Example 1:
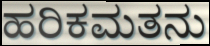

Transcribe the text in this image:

ಹರಿಕಮತನು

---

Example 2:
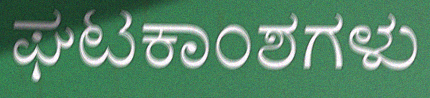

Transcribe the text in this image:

ಘಟಕಾಂಶಗಳು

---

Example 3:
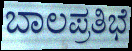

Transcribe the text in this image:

ಬಾಲಪ್ರತಿಭೆ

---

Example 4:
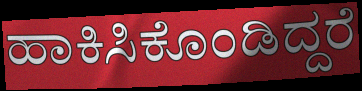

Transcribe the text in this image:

ಹಾಕಿಸಿಕೊಂಡಿದ್ದರೆ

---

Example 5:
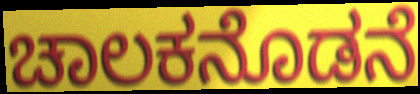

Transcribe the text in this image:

ಚಾಲಕನೊಡನೆ